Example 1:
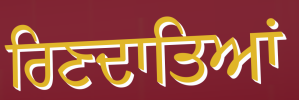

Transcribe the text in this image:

ਰਿਣਦਾਤਿਆਂ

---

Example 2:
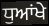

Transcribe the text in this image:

ਧੁਆਂਖੇ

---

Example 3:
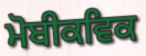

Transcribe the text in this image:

ਮੋਬੀਕਵਿਕ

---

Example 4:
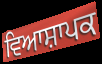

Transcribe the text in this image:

ਵਿਆਸ਼ਾਪਕ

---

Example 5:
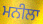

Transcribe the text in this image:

ਮਨੀਲਾ